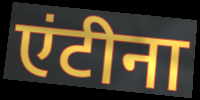
एंटीना